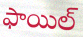
ఫాయిల్